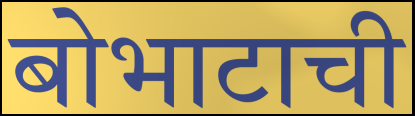
बोभाटाची